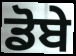
ਡੋਬੇ